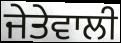
ਜੇਤੇਵਾਲੀ